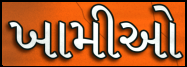
ખામીઓ